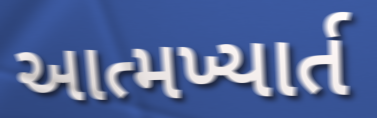
આત્મખ્યાર્ત